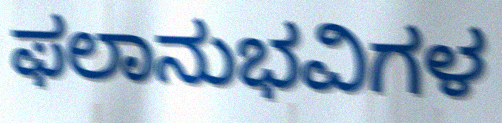
ಫಲಾನುಭವಿಗಳ